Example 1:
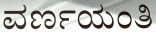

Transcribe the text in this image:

ವರ್ಣಯಂತಿ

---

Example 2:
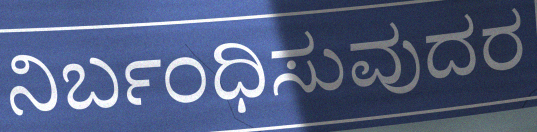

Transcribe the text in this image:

ನಿರ್ಬಂಧಿಸುವುದರ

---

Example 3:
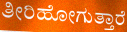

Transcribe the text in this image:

ತೀರಿಹೋಗುತ್ತಾರೆ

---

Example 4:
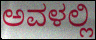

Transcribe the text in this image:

ಅವಳಲ್ಲಿ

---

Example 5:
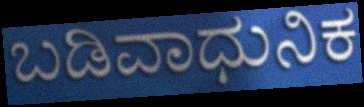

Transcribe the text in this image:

ಬಡಿವಾಧುನಿಕ